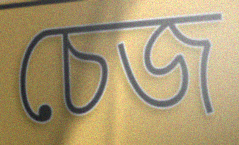
চেজ